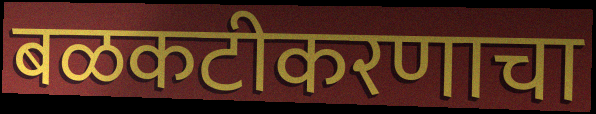
बळकटीकरणाचा